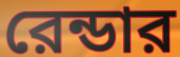
রেন্ডার